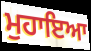
ਮੁਹਾਇਆ